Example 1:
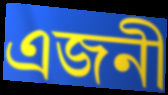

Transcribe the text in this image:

এজনী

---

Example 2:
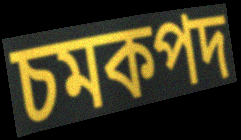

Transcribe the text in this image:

চমকপদ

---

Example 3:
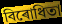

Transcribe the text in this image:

বিৰোধিতা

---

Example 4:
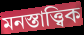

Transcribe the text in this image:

মনস্তাত্ত্বিক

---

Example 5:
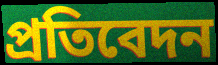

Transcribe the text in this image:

প্ৰতিবেদন